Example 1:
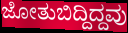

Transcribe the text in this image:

ಜೋತುಬಿದ್ದಿದ್ದವು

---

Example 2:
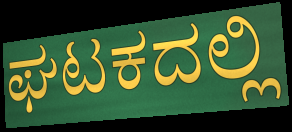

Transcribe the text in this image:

ಘಟಕದಲ್ಲಿ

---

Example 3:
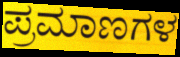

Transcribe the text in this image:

ಪ್ರಮಾಣಗಳ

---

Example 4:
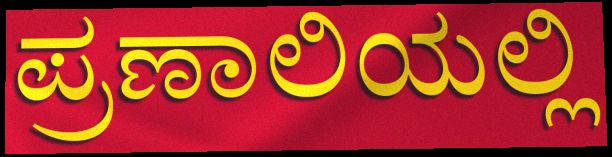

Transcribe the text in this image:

ಪ್ರಣಾಲಿಯಲ್ಲಿ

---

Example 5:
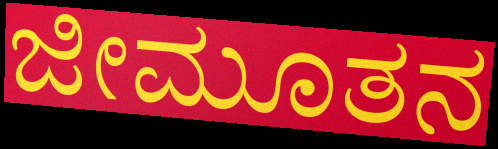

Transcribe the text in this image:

ಜೀಮೂತನ